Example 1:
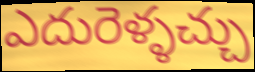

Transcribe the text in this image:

ఎదురెళ్ళచ్చు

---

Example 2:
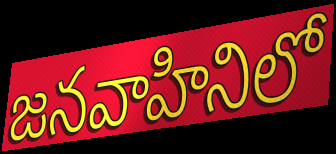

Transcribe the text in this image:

జనవాహినిలో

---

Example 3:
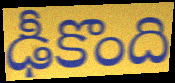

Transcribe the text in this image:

ఢీకొంది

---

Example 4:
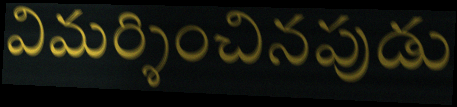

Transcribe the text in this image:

విమర్శించినపుడు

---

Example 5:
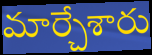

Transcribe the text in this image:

మార్చేశారు